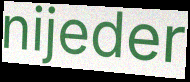
nijeder